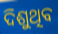
ଦିଶୁଥିବ